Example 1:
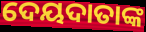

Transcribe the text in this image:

ଦେୟଦାତାଙ୍କ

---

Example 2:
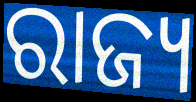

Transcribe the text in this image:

ରାଜ୍ଯ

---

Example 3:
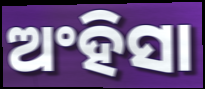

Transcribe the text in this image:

ଅଂହିସା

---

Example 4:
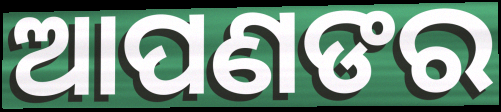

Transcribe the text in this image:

ଆପଣଙର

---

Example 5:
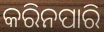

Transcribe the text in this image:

କରିନପାରି